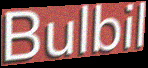
Bulbil